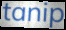
tanip